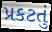
પ્રકટતું